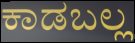
ಕಾಡಬಲ್ಲ